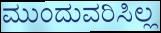
ಮುಂದುವರಿಸಿಲ್ಲ